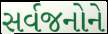
સર્વજનોને